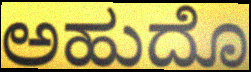
ಅಹುದೊ